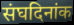
संघदिनांक